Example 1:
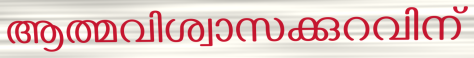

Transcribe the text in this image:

ആത്മവിശ്വാസക്കുറവിന്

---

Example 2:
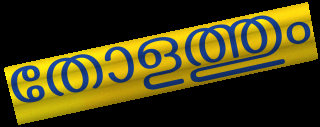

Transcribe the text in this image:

തോളത്തും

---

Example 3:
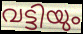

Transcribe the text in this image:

വട്ടിയും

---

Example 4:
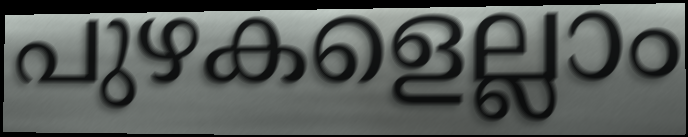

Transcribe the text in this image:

പുഴകളെല്ലാം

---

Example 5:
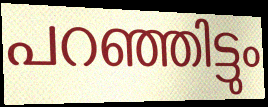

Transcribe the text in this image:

പറഞ്ഞിട്ടും